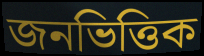
জনভিত্তিক